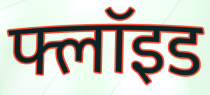
फ्लॉइड